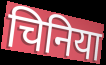
चिनिया